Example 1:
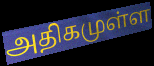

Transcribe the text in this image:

அதிகமுள்ள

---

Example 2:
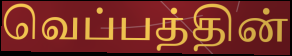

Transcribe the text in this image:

வெப்பத்தின்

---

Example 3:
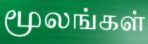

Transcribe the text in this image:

மூலங்கள்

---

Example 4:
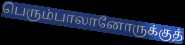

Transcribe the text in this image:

பெரும்பாலானோருக்குத்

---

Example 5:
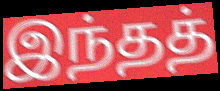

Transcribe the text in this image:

இந்தத்